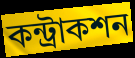
কন্ট্রাকশন